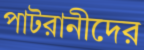
পাটরানীদের